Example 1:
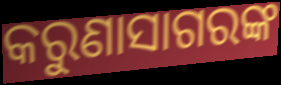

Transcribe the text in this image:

କରୁଣାସାଗରଙ୍କ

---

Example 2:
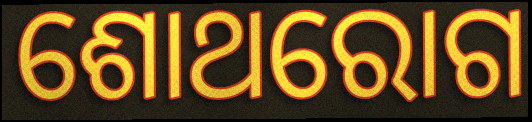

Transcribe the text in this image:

ଶୋଥରୋଗ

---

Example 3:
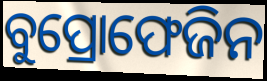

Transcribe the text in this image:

ବୁପ୍ରୋଫେଜିନ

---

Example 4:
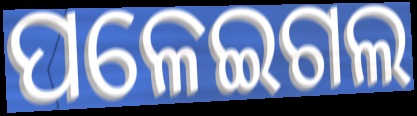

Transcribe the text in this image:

ପଳେଇଗଲ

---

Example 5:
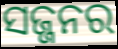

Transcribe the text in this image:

ସଜ୍ଜନର